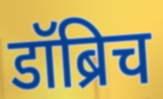
डॉब्रिच